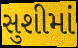
સુશીમાં